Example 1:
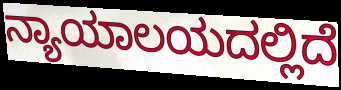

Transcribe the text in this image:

ನ್ಯಾಯಾಲಯದಲ್ಲಿದೆ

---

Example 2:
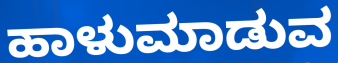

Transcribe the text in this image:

ಹಾಳುಮಾಡುವ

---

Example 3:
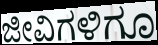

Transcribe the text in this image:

ಜೀವಿಗಳಿಗೂ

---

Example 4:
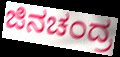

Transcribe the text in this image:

ಜಿನಚಂದ್ರ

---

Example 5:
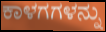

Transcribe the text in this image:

ಕಾಳಗಗಳನ್ನು